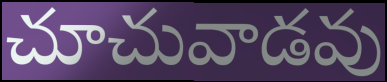
చూచువాడవు